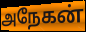
அநேகன்